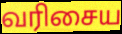
வரிசைய